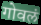
गोवलं